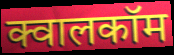
क्‍वालकॉम